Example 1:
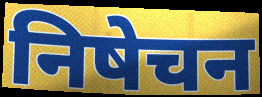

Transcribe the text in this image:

निषेचन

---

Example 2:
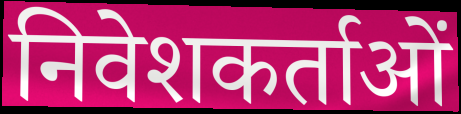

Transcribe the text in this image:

निवेशकर्ताओं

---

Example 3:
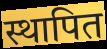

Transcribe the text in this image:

स्थापित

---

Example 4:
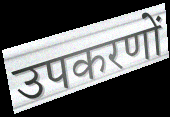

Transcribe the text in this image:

उपकरणों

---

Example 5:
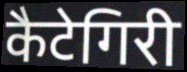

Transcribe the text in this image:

कैटेगिरी